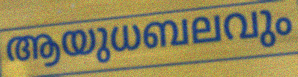
ആയുധബലവും